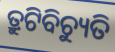
ତ୍ରୁଟିବିଚ୍ୟୁତି